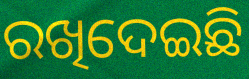
ରଖିଦେଇଛି